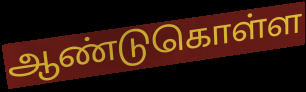
ஆண்டுகொள்ள